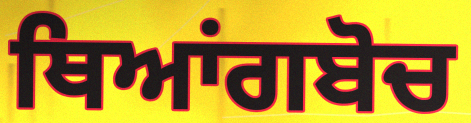
ਥਿਆਂਗਬੋਚ